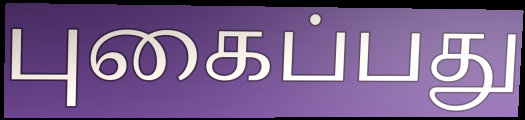
புகைப்பது